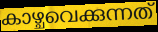
കാഴ്ചവെക്കുന്നത്